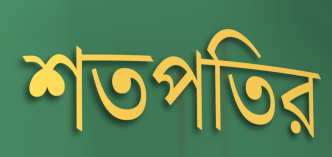
শতপতির